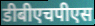
डीबीएचपीएस